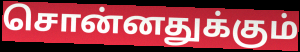
சொன்னதுக்கும்